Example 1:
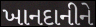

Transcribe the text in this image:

ખાનદાનીને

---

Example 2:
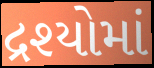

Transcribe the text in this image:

દ્રશ્યોમાં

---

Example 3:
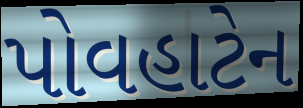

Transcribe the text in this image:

પોવહાટેન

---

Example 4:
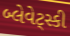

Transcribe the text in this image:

બ્લેવેટ્સ્કી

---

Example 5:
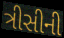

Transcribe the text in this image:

ત્રીસીની